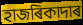
হাজৰিকাদাৰ